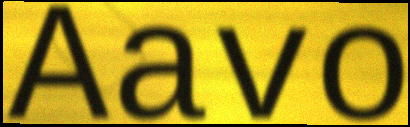
Aavo